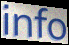
info